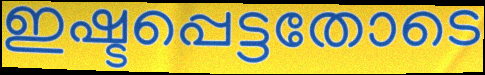
ഇഷ്ടപ്പെട്ടതോടെ